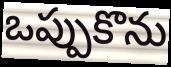
ఒప్పుకొను